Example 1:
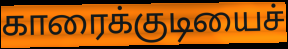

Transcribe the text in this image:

காரைக்குடியைச்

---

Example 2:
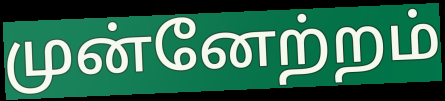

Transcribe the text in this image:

முன்னேற்றம்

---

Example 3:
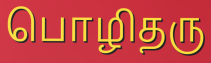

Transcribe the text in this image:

பொழிதரு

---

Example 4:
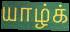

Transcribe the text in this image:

யாழ்க்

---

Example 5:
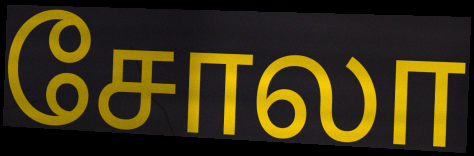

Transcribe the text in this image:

சோலா